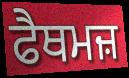
ਫੈਥਮਜ਼